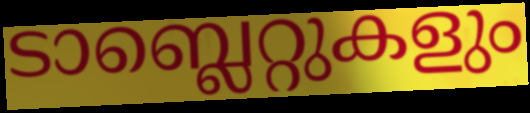
ടാബ്ലെറ്റുകളും